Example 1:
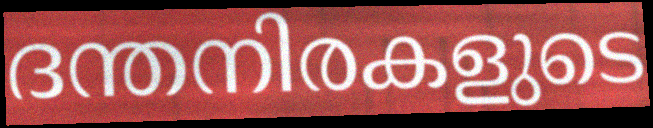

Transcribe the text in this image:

ദന്തനിരകളുടെ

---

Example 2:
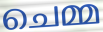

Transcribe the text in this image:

ചെമ്മ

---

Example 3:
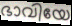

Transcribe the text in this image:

ഭാവിയേ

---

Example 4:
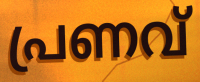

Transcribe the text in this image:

പ്രണവ്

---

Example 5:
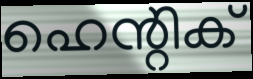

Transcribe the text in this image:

ഹെന്റിക്